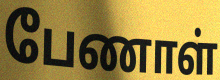
பேணாள்